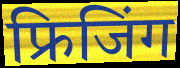
फ्रिजिंग